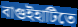
বাগুইহাটিতে